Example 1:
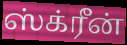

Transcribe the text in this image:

ஸ்க்ரீன்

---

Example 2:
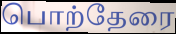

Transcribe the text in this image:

பொற்தேரை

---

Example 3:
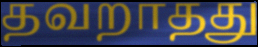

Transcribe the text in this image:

தவறாதது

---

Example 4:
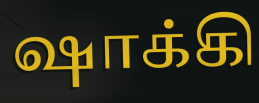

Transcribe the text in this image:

ஷாக்கி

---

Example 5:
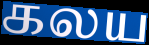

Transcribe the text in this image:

கலய